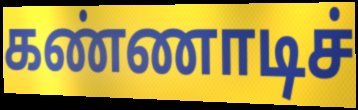
கண்ணாடிச்